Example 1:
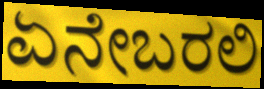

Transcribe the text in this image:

ಏನೇಬರಲಿ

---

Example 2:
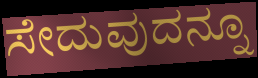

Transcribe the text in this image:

ಸೇದುವುದನ್ನೂ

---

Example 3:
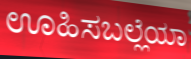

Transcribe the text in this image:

ಊಹಿಸಬಲ್ಲೆಯಾ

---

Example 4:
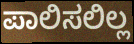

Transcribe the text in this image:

ಪಾಲಿಸಲಿಲ್ಲ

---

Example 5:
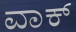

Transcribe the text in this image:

ವಾಕ್